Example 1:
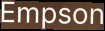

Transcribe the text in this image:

Empson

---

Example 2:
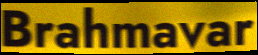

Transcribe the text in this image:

Brahmavar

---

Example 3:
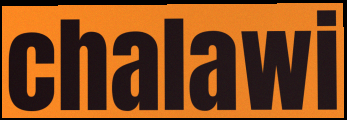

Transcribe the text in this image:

chalawi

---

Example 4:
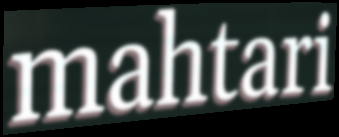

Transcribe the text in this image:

mahtari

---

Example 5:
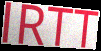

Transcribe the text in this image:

IRTT